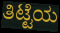
ತಿಟ್ಟೆಯ